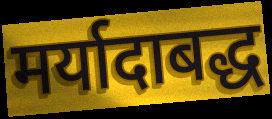
मर्यादाबद्ध